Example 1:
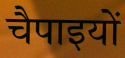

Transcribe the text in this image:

चैपाइयों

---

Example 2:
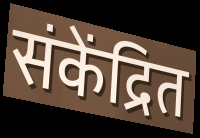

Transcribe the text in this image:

संकेंद्रित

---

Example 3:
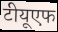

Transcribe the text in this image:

टीयूएफ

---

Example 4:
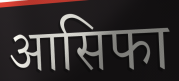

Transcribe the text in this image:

आसिफा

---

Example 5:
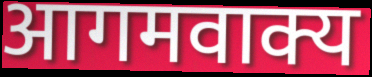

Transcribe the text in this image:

आगमवाक्य